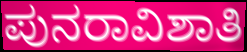
ಪುನರಾವಿಶಾತಿ